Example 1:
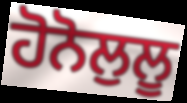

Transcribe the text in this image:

ਹੋਨੋਲੁਲੂ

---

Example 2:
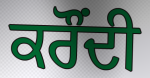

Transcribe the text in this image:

ਕਰੌਂਦੀ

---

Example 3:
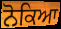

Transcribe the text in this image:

ਨੋਕਿਆ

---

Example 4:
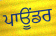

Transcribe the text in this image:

ਪਾਊਂਡਰ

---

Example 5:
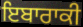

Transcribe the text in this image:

ਇਬਾਰਾਕੀ